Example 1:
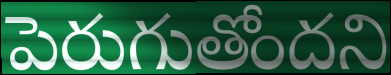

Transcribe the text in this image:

పెరుగుతోందని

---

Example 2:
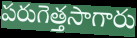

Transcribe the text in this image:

పరుగెత్తసాగారు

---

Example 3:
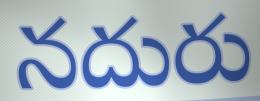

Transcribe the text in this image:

నదురు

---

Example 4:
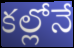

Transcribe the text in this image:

కల్లోనే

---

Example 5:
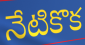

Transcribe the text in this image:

నేటికొక